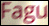
Fagu